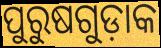
ପୁରୁଷଗୁଡ଼ାକ